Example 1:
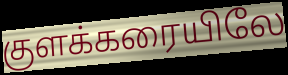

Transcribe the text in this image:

குளக்கரையிலே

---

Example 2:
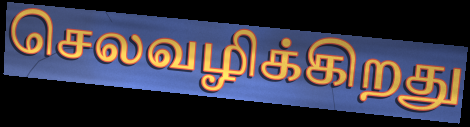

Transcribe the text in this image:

செலவழிக்கிறது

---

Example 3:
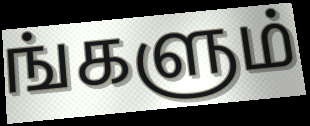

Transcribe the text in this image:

ங்களும்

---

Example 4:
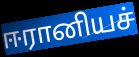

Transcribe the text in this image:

ஈரானியச்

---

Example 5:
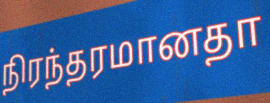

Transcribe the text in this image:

நிரந்தரமானதா